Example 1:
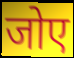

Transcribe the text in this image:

जोए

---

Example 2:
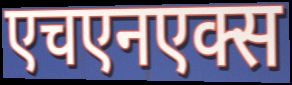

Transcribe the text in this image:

एचएनएक्स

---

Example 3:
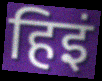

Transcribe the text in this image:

हिइं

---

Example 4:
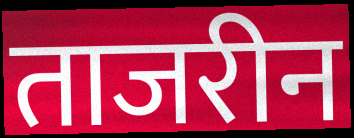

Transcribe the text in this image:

ताजरीन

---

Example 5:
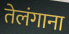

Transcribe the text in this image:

तेलंगाना